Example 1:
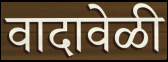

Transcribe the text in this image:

वादावेळी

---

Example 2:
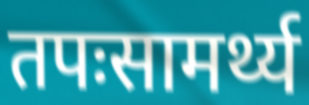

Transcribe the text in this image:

तपःसामर्थ्य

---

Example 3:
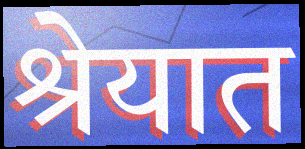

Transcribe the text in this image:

श्रेयात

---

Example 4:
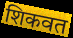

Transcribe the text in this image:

शिकवत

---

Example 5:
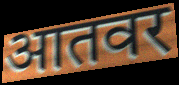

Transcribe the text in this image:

आतवर